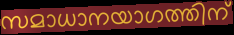
സമാധാനയാഗത്തിന്